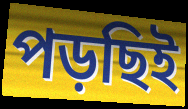
পড়ছিই